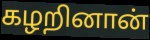
கழறினான்